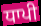
ਧਾਪੀ